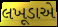
લખૂડાએ